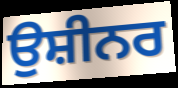
ਉਸ਼ੀਨਰ